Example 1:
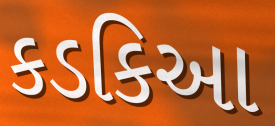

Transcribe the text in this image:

કડકિઆ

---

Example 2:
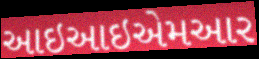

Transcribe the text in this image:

આઇઆઇએમઆર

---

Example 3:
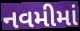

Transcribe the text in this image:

નવમીમાં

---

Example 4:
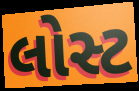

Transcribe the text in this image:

લોસ્ટ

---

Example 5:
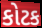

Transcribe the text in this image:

કોટક